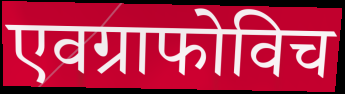
एवग्राफोविच